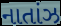
નાતાંઝ